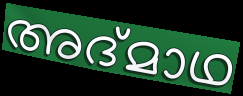
അദ്മാഥ